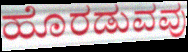
ಹೊರಡುವವು